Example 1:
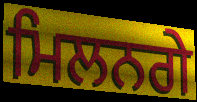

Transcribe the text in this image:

ਮਿਲਨਗੇ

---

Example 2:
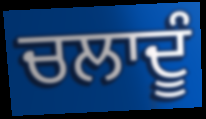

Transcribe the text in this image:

ਚਲਾਦੂੰ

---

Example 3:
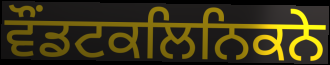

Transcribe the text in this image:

ਵੌਂਡਟਕਲਿਨਿਕਨੇ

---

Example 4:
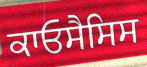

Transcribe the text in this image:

ਕਾਓਸੈਸਿਸ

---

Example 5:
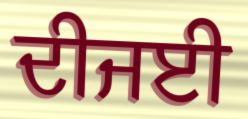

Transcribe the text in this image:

ਦੀਜਈ